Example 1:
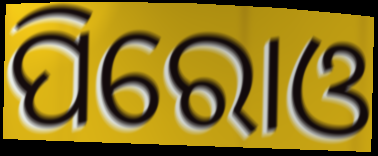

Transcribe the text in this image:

ପିରୋଓ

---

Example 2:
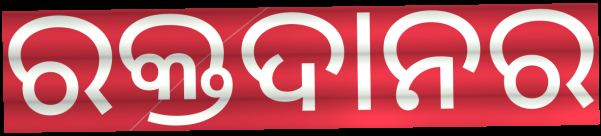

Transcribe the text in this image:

ରକ୍ତଦାନର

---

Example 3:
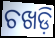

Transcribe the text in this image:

ଚଖଡ଼ି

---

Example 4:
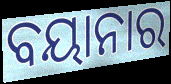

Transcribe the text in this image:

ବୟାନାର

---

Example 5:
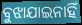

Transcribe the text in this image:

ବୁଝାଯାଇନାହିଁ